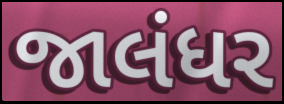
જાલંધર